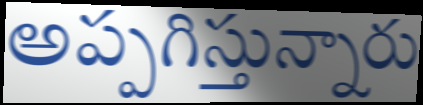
అప్పగిస్తున్నారు